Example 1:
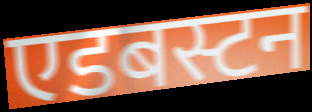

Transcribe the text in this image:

एडबस्टन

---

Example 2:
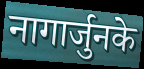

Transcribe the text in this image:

नागार्जुनके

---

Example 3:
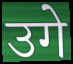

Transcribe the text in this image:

उगे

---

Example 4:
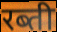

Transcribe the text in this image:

रब्ती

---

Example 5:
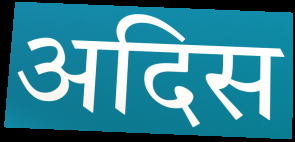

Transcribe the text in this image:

अदिस